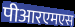
पीआरएमएस